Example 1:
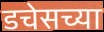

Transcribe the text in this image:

डचेसच्या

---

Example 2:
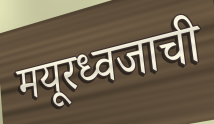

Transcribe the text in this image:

मयूरध्वजाची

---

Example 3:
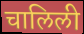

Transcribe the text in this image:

चालिली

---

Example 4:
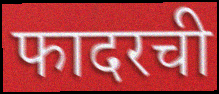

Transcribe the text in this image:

फादरची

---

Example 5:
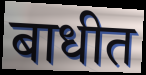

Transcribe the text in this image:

बाधीत